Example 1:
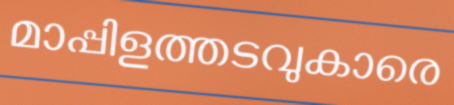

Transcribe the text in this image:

മാപ്പിളത്തടവുകാരെ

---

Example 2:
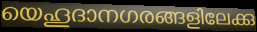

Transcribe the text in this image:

യെഹൂദാനഗരങ്ങളിലേക്കു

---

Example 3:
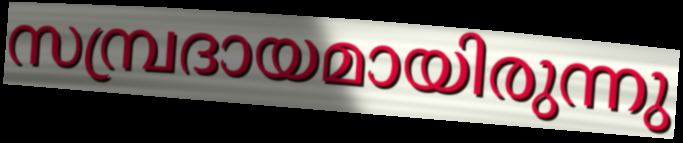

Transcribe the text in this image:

സമ്പ്രദായമായിരുന്നു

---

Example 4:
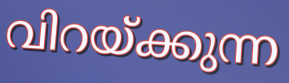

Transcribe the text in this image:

വിറയ്ക്കുന്ന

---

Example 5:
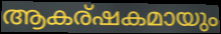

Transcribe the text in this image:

ആകര്ഷകമായും